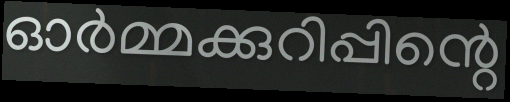
ഓർമ്മക്കുറിപ്പിന്റെ